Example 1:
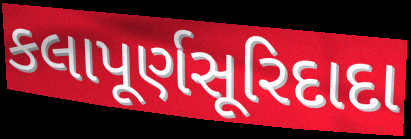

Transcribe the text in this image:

કલાપૂર્ણસૂરિદાદા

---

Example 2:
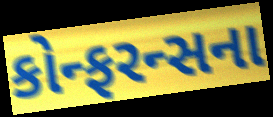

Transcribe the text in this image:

કોન્ફરન્સના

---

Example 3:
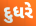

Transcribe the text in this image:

દુધરે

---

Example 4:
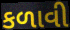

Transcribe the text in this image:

કળાવી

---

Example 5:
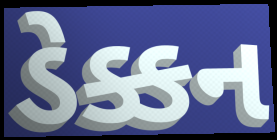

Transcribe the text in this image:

ડેક્કન